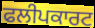
ਫਲੀਪਕਾਰਟ